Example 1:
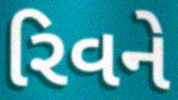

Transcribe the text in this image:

રિવને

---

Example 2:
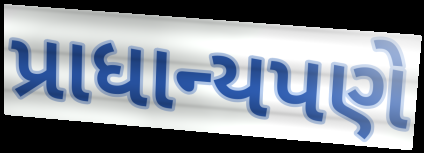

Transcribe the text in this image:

પ્રાધાન્યપણે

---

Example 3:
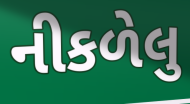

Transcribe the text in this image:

નીકળેલુ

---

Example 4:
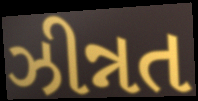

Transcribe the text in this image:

ઝીન્નત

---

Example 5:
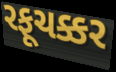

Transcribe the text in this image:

રફૂચક્કર